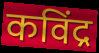
कविंद्र